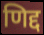
णिद्द